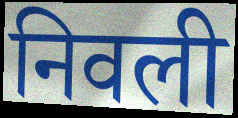
निवली